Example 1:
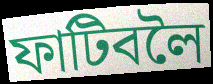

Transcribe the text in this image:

ফাটিবলৈ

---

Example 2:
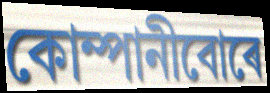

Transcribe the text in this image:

কোম্পানীবোৰে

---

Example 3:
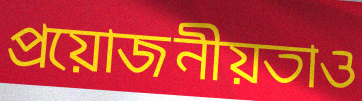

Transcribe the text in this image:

প্ৰয়োজনীয়তাও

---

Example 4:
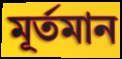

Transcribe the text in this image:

মূৰ্তমান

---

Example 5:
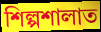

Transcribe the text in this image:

শিল্পশালাত